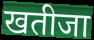
खतीजा